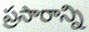
ప్రసారాన్ని